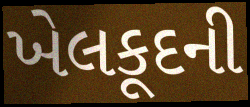
ખેલકૂદની